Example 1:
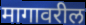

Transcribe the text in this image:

मागावरील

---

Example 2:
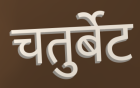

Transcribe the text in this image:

चतुर्बेट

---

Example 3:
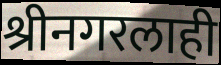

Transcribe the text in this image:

श्रीनगरलाही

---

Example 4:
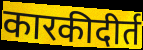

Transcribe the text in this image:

कारकीदीर्त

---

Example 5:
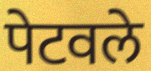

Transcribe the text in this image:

पेटवले